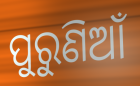
ପୁରୁଣିଆଁ